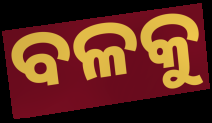
ବଳକୁ